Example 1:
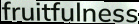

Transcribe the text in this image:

fruitfulness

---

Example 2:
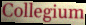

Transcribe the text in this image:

Collegium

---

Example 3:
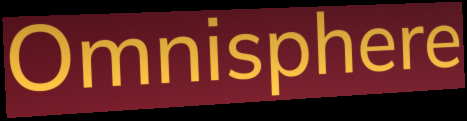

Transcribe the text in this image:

Omnisphere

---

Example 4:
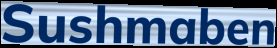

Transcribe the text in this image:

Sushmaben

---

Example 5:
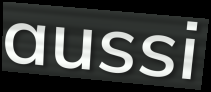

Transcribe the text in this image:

aussi